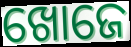
ଖୋଜେ